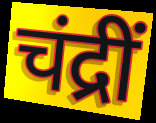
चंद्रीं